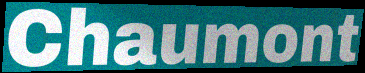
Chaumont